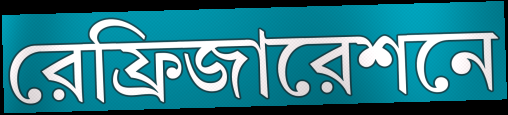
রেফ্রিজারেশনে